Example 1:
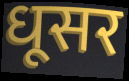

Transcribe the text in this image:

धूसर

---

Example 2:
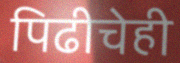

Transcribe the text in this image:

पिढीचेही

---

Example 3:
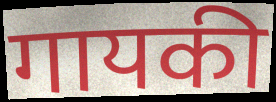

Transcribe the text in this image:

गायकी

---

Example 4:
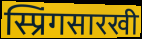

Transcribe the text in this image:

स्प्रिंगसारखी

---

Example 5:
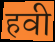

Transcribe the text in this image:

हवी